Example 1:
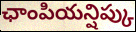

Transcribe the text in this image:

ఛాంపియన్షిప్కు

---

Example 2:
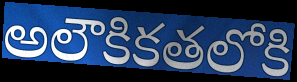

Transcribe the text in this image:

అలౌకికతలోకి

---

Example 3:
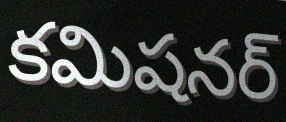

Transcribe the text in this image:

కమిషనర్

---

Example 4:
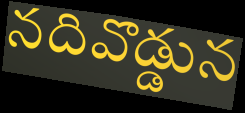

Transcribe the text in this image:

నదివొడ్డున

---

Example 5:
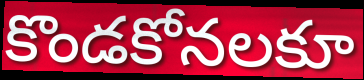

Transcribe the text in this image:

కొండకోనలకూ